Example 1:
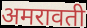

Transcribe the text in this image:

अमरावती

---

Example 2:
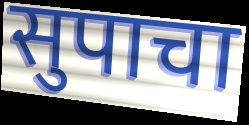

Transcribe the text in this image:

सुपाचा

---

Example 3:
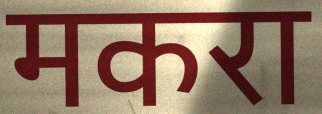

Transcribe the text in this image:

मकरा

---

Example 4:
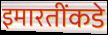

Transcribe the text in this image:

इमारतींकडे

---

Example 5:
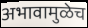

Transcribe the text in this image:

अभावामुळेच